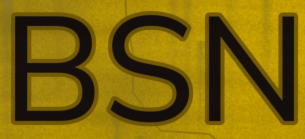
BSN